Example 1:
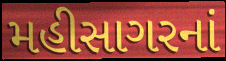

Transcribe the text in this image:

મહીસાગરનાં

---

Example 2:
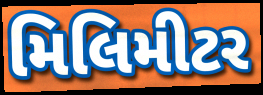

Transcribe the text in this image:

મિલિમીટર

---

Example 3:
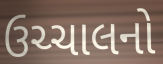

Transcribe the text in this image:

ઉચ્ચાલનો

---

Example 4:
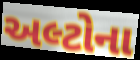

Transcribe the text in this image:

અલ્ટોના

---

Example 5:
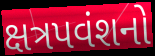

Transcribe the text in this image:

ક્ષત્રપવંશનો